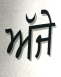
ਅੱਜੇ